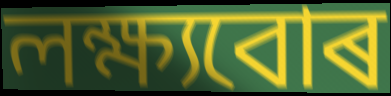
লক্ষ্যবোৰ